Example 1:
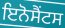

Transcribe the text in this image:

ਇਨੋਸੈਂਟਸ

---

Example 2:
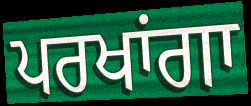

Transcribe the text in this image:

ਪਰਖਾਂਗਾ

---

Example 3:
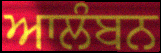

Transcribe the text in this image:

ਆਲੰਬਨ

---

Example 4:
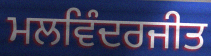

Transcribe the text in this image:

ਮਲਵਿੰਦਰਜੀਤ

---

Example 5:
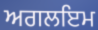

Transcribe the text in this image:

ਅਗਲਇਮ